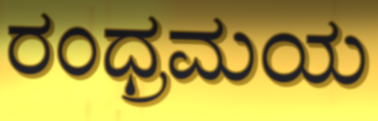
ರಂಧ್ರಮಯ